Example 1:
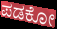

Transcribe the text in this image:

ಪಡಕೋ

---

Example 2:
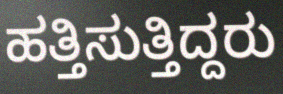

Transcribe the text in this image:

ಹತ್ತಿಸುತ್ತಿದ್ದರು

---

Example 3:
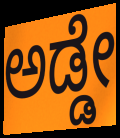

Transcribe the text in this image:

ಅಡ್ಡೇ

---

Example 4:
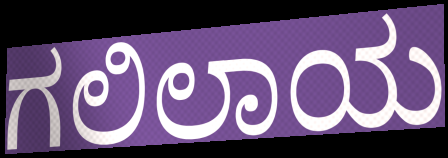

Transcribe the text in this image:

ಗಲಿಲಾಯ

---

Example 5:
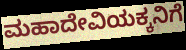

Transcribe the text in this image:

ಮಹಾದೇವಿಯಕ್ಕನಿಗೆ